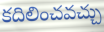
కదిలించవచ్చు